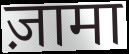
ज़ामा